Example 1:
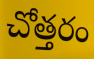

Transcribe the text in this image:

చోత్తరం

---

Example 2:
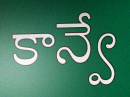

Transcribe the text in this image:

కాన్వే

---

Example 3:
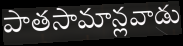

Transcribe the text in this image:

పాతసామాన్లవాడు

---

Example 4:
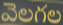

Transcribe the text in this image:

వెలగల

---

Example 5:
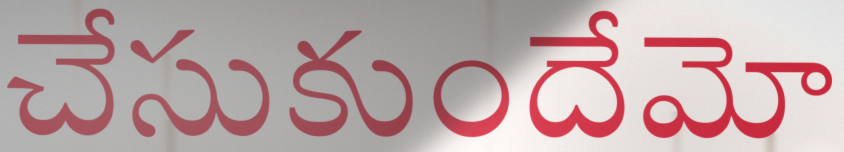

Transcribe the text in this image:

చేసుకుందేమో